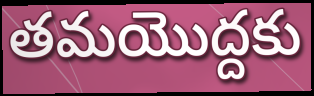
తమయొద్దకు